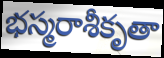
భస్మరాశీకృతా